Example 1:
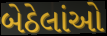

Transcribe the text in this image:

બેઠેલાંઓ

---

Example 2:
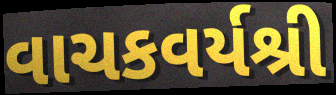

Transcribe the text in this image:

વાચકવર્યશ્રી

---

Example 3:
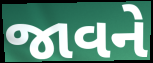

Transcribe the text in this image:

જાવને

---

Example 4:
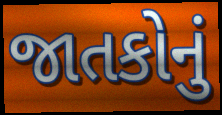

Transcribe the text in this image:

જાતકોનું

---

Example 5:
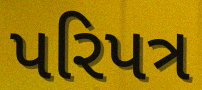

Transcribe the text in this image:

પરિપત્ર